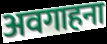
अवगाहना